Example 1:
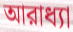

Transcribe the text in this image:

আরাধ্যা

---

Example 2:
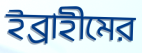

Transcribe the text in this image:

ইব্রাহীমের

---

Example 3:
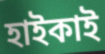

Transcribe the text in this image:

হাইকাই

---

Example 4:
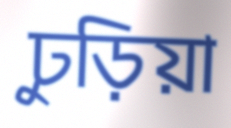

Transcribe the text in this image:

ঢুড়িয়া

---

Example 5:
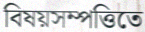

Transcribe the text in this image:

বিষয়সম্পত্তিতে